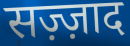
सज़्ज़ाद